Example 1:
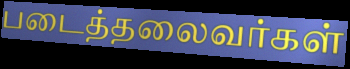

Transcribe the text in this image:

படைத்தலைவர்கள்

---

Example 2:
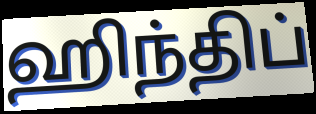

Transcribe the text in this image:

ஹிந்திப்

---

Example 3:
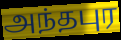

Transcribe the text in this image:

அந்தபுர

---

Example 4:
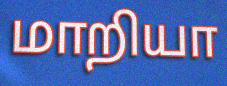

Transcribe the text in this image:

மாறியா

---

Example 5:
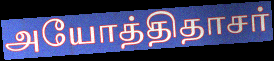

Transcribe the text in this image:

அயோத்திதாசர்